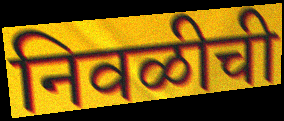
निवळीची